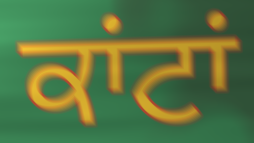
ਕਾਂਟਾਂ